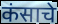
कंसाचे